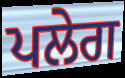
ਪਲੇਗ